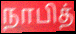
நாபித்